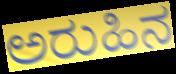
ಅರುಹಿನ